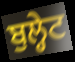
ਬੁਲ੍ਹੇਟ